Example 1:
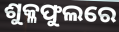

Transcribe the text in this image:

ଶୁକ୍ଳଫୁଲରେ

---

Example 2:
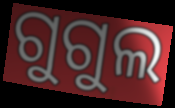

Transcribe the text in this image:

ଗୁଗୁଲ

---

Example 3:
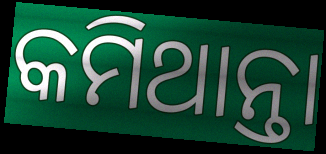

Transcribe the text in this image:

କମିଥାନ୍ତା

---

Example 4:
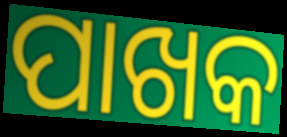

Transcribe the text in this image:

ପାଖକ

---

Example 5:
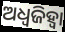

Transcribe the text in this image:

ଅଧ୍ୱଜିହ୍ବା